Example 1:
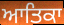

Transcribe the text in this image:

ਆਤਿਕਾ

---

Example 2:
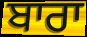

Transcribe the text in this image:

ਬਾਰਾ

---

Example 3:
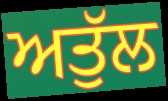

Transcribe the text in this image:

ਅਤੁੱਲ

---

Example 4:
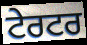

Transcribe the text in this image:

ਟੇਰਟਰ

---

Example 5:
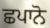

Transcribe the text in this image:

ਛਪਾਨੋ